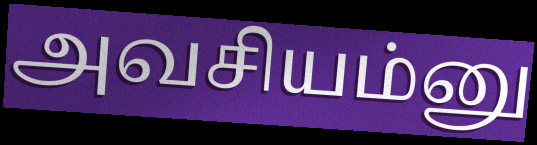
அவசியம்னு